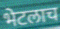
भेटलाच